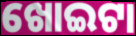
ଖୋଇଟା